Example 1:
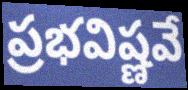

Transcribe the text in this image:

ప్రభవిష్ణవే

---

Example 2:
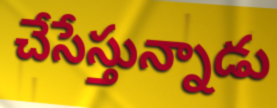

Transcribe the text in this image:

చేసేస్తున్నాడు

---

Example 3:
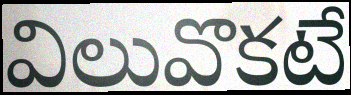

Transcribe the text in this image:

విలువొకటే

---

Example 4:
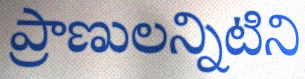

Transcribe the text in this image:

ప్రాణులన్నిటిని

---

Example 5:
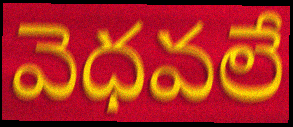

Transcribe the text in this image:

వెధవలే